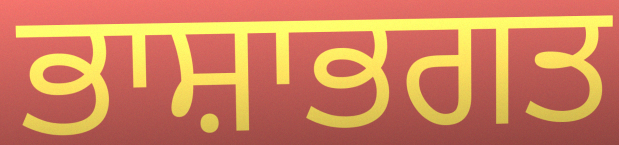
ਭਾਸ਼ਾਭਗਤ